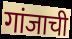
गांजाची